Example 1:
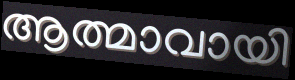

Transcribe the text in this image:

ആത്മാവായി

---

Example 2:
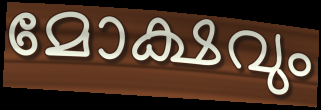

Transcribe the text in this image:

മോക്ഷവും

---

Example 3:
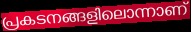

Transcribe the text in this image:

പ്രകടനങ്ങളിലൊന്നാണ്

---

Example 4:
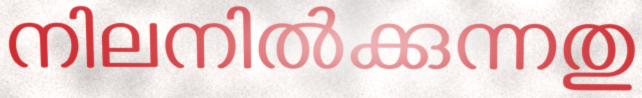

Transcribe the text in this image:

നിലനിൽക്കുന്നതു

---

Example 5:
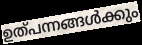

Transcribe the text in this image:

ഉത്പന്നങ്ങൾക്കും